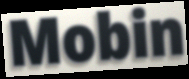
Mobin